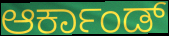
ಆರ್ಕಾಂಡ್